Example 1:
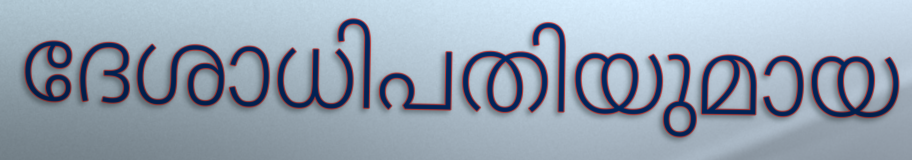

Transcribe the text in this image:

ദേശാധിപതിയുമായ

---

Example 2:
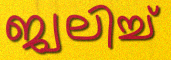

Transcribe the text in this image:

ജ്വലിച്ച്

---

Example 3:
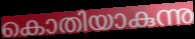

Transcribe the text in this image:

കൊതിയാകുന്നു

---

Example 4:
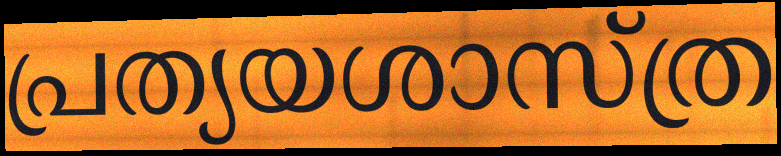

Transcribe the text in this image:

പ്രത്യയശാസ്ത്ര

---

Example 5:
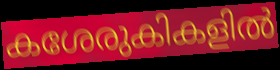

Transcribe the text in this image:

കശേരുകികളിൽ